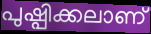
പുഷ്പിക്കലാണ്